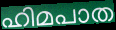
ഹിമപാത